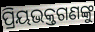
ପ୍ରିୟଭକ୍ତଗଣଙ୍କୁ